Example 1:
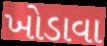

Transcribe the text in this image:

ખોડાવા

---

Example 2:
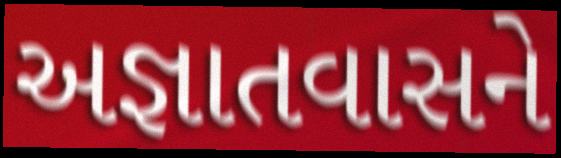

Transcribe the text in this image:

અજ્ઞાતવાસને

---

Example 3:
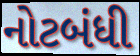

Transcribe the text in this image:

નોટબંધી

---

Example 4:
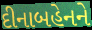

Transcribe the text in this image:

દીનાબહેનને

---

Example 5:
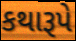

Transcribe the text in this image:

કથારૂપે